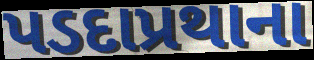
પડદાપ્રથાના